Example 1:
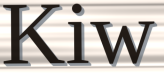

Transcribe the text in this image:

Kiw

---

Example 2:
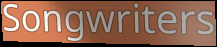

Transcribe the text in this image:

Songwriters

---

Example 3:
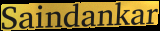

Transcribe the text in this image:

Saindankar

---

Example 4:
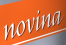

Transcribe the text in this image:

novina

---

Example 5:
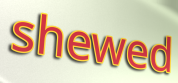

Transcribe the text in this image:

shewed